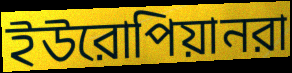
ইউরোপিয়ানরা